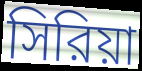
সিরিয়া